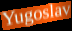
Yugoslav